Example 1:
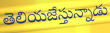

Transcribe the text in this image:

తెలియజేస్తున్నాడు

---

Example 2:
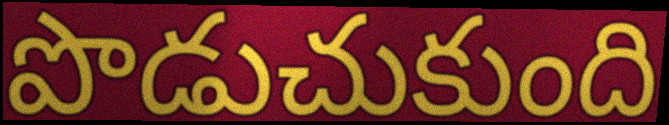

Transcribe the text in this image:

పొడుచుకుంది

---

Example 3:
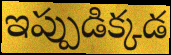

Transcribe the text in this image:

ఇప్పుడిక్కడ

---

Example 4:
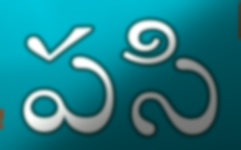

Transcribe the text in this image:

పసి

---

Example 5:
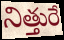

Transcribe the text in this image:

నిత్తురే